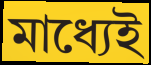
মাধ্যেই